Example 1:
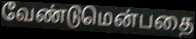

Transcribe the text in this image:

வேண்டுமென்பதை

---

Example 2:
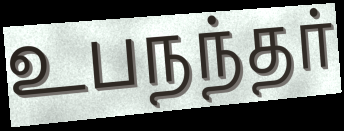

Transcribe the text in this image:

உபநந்தர்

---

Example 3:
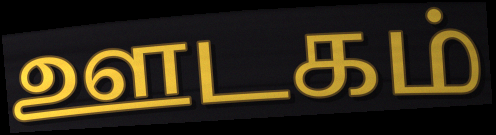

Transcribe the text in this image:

ஊடகம்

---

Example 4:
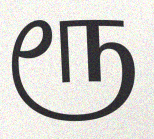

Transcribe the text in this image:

ரூ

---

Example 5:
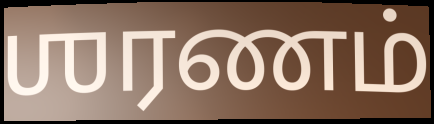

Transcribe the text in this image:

ஶரணம்